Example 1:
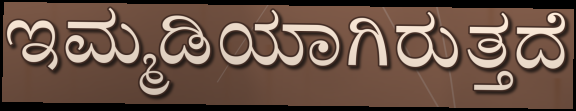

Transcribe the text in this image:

ಇಮ್ಮಡಿಯಾಗಿರುತ್ತದೆ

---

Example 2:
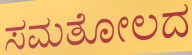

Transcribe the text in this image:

ಸಮತೋಲದ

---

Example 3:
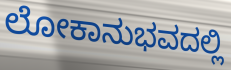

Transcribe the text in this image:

ಲೋಕಾನುಭವದಲ್ಲಿ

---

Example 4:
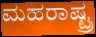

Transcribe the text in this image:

ಮಹರಾಷ್ಟ್ರ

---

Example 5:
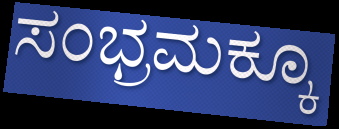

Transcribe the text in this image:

ಸಂಭ್ರಮಕ್ಕೂ